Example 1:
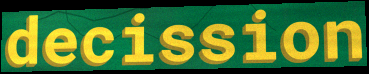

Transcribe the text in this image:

decission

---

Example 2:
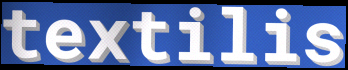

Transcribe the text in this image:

textilis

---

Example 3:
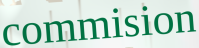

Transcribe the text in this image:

commision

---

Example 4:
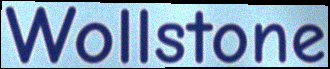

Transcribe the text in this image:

Wollstone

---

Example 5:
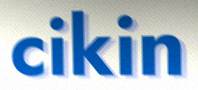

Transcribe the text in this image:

cikin